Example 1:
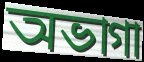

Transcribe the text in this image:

অভাগা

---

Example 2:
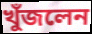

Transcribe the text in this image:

খুঁজলেন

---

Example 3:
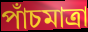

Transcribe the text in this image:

পাঁচমাত্রা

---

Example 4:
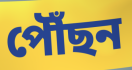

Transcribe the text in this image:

পৌঁছন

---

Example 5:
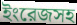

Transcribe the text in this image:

ইংরেজসহ